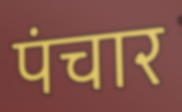
पंचार